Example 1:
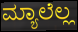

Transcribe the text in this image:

ಮ್ಯಾಲೆಲ್ಲ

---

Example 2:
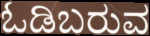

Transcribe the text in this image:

ಓಡಿಬರುವ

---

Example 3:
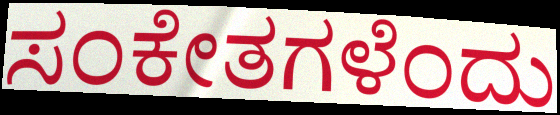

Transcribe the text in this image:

ಸಂಕೇತಗಳೆಂದು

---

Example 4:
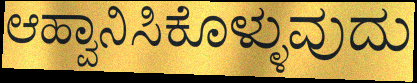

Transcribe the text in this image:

ಆಹ್ವಾನಿಸಿಕೊಳ್ಳುವುದು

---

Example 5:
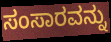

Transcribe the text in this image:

ಸಂಸಾರವನ್ನು